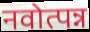
नवोत्पन्न